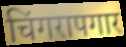
चिंगरापगार